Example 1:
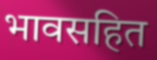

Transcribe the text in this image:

भावसहित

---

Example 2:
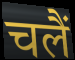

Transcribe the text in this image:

चलैं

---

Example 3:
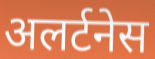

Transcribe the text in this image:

अलर्टनेस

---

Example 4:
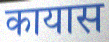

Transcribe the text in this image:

कायास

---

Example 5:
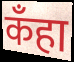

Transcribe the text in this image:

कँहा